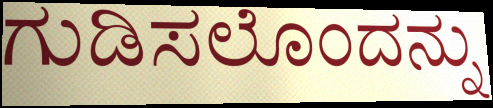
ಗುಡಿಸಲೊಂದನ್ನು